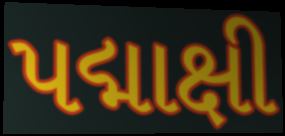
પદ્માક્ષી